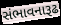
સંભાવનારૂઢ